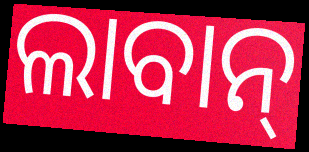
ଲାବାନ୍